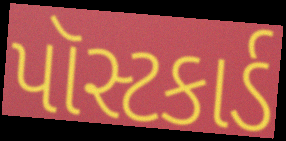
પૉસ્ટકાર્ડ